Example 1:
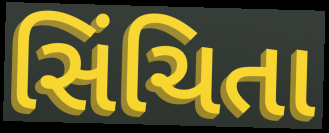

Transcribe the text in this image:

સિંચિતા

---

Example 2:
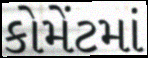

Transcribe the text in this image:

કોમેંટમાં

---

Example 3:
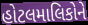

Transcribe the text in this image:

હોટલમાલિકોને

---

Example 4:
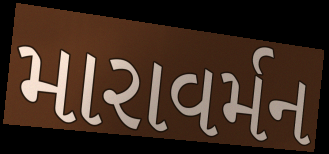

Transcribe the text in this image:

મારાવર્મન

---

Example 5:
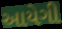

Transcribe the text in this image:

આયેગી